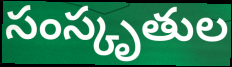
సంస్కృతుల